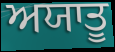
ਅਯਾਤੂ